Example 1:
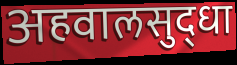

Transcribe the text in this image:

अहवालसुद्धा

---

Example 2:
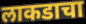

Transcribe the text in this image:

लाकडाचा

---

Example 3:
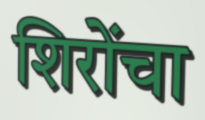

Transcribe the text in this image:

शिरोंचा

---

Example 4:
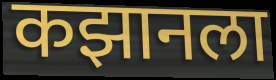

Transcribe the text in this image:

कझानला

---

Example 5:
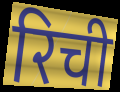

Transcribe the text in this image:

रिची